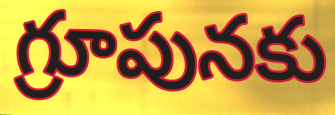
గ్రూపునకు